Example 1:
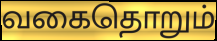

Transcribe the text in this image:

வகைதொறும்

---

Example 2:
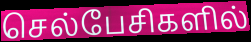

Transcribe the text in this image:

செல்பேசிகளில்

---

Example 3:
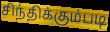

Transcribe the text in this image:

சிந்திக்கும்படி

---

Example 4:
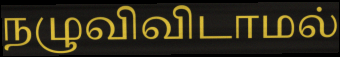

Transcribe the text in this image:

நழுவிவிடாமல்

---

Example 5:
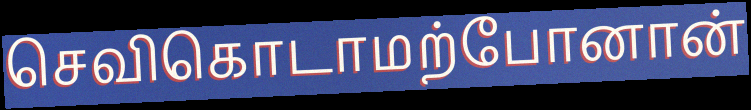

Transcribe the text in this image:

செவிகொடாமற்போனான்